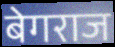
बेगराज